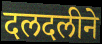
दलदलीने